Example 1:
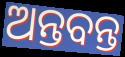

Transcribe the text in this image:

ଅନ୍ତବନ୍ତ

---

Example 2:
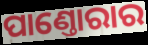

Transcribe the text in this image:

ପାଣ୍ତୋରାର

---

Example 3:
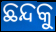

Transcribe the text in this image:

ଛନ୍ଦକୁ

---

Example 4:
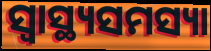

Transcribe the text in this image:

ସ୍ୱାସ୍ଥ୍ୟସମସ୍ୟା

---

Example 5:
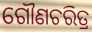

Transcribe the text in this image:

ଗୌଣଚରିତ୍ର